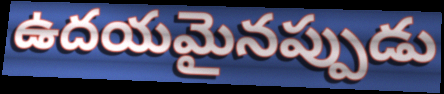
ఉదయమైనప్పుడు